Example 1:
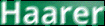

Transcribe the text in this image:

Haarer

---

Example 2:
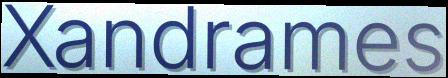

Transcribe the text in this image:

Xandrames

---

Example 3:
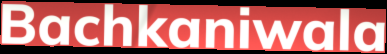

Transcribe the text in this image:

Bachkaniwala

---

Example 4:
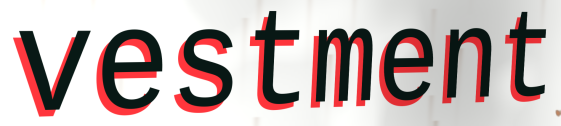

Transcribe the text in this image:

vestment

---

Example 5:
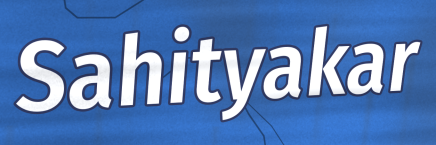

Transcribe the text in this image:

Sahityakar